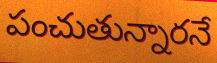
పంచుతున్నారనే